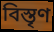
বিস্তৃণ